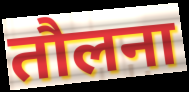
तौलना